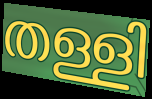
തള്ളി